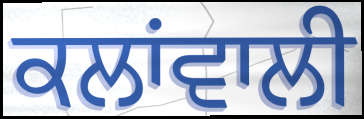
ਕਲਾਂਵਾਲੀ